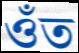
ওঁত